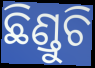
ଛିଣ୍ଡୁଚି